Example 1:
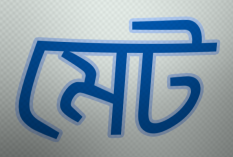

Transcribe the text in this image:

মেট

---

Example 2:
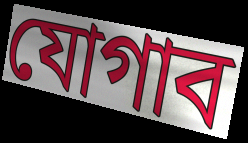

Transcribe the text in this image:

যোগাব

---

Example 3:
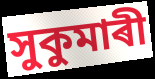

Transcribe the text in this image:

সুকুমাৰী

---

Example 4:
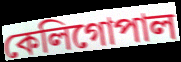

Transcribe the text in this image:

কেলিগোপাল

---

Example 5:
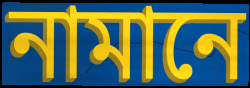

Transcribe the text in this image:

নামানে